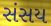
સંસય